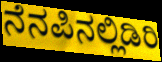
ನೆನಪಿನಲ್ಲಿಡಿರಿ